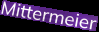
Mittermeier